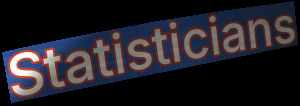
Statisticians